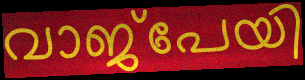
വാജ്പേയി